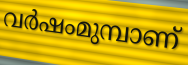
വർഷംമുമ്പാണ്